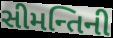
સીમન્તિની